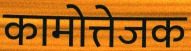
कामोत्तेजक